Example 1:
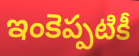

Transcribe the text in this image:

ఇంకెప్పటికీ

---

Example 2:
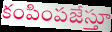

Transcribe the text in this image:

కంపింపజేస్తూ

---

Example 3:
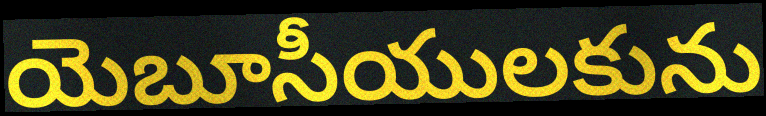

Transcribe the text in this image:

యెబూసీయులకును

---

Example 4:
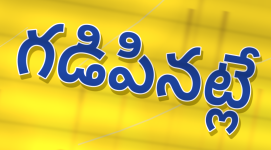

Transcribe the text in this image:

గడిపినట్లే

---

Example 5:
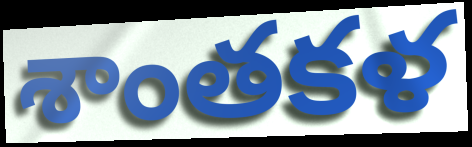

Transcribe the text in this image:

శాంతకళ